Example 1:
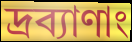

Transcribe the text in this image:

দ্রব্যাণাং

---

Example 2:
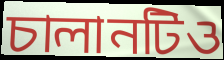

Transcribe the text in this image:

চালানটিও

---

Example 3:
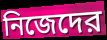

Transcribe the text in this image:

নিজেদের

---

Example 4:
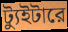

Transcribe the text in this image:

ট্যুইটারে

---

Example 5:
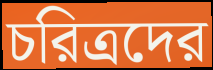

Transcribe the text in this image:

চরিত্রদের